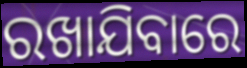
ରଖାଯିବାରେ